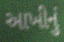
આખીનું